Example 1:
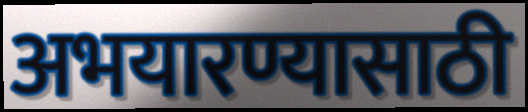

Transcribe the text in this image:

अभयारण्यासाठी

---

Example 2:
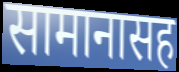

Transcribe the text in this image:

सामानासह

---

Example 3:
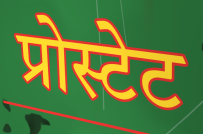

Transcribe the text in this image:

प्रोस्टेट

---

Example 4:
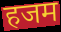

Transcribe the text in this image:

हजम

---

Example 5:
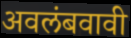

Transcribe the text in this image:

अवलंबवावी